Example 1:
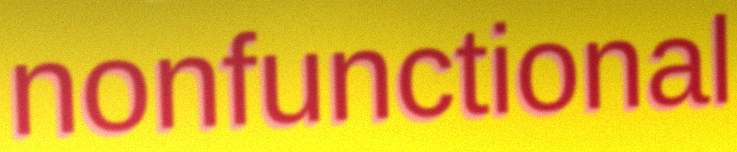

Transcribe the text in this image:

nonfunctional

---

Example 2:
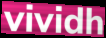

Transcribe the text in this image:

vividh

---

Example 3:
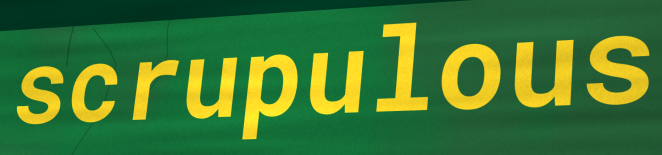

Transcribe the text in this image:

scrupulous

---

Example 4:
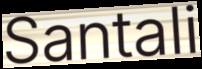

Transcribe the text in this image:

Santali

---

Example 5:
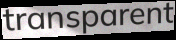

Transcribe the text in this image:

transparent